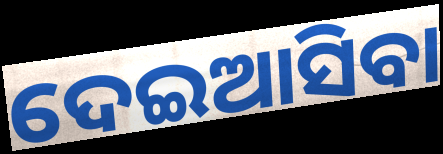
ଦେଇଆସିବା